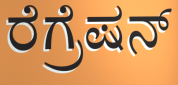
ರೆಗ್ರೆಷನ್